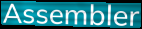
Assembler